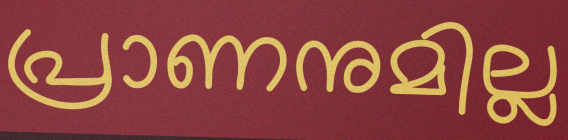
പ്രാണനുമില്ല